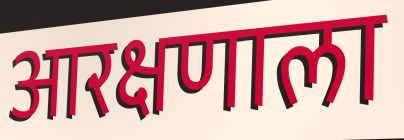
आरक्षणाला